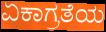
ಏಕಾಗ್ರತೆಯ